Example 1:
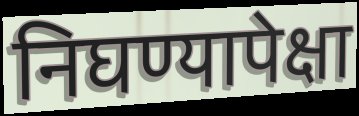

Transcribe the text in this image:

निघण्यापेक्षा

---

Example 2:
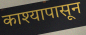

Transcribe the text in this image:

काश्यापासून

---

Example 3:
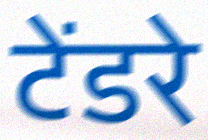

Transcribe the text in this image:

टेंडरे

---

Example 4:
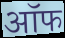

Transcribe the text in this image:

ऑफ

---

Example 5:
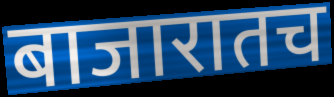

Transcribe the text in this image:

बाजारातच